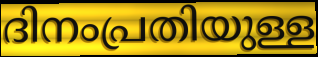
ദിനംപ്രതിയുള്ള